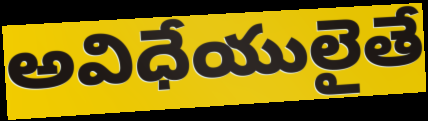
అవిధేయులైతే